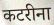
कटरीना